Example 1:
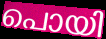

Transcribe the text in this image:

പൊയി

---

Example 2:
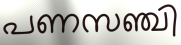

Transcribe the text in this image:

പണസഞ്ചി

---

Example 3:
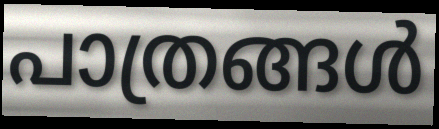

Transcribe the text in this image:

പാത്രങ്ങൾ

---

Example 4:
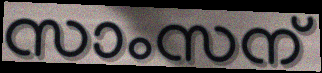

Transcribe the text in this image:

സാംസന്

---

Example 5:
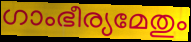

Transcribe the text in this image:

ഗാംഭീര്യമേതും